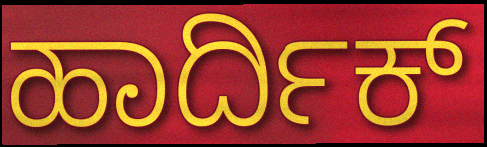
ಹಾರ್ದಿಕ್